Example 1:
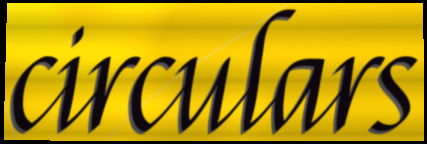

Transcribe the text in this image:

circulars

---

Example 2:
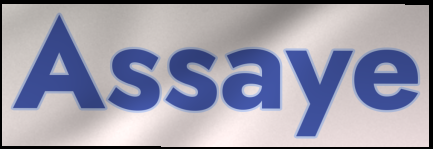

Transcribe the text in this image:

Assaye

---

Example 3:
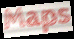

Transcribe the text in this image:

Maps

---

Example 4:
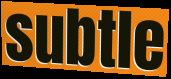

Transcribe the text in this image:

subtle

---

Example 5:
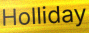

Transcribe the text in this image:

Holliday